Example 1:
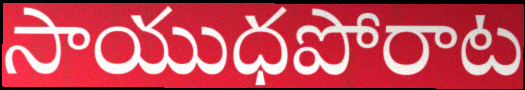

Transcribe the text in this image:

సాయుధపోరాట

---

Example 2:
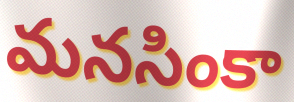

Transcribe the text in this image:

మనసింకా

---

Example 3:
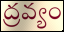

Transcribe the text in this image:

ద్రవ్యం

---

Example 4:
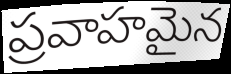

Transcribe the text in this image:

ప్రవాహమైన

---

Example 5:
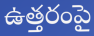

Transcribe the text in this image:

ఉత్తరంపై